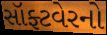
સૉફ્ટવેરનો